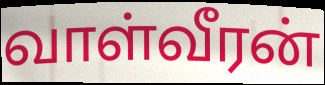
வாள்வீரன்